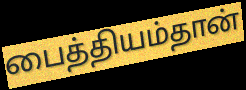
பைத்தியம்தான்